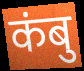
कंबु